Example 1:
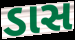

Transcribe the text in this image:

ડાસ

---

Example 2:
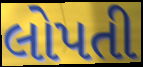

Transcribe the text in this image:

લોપતી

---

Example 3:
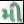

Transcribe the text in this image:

મી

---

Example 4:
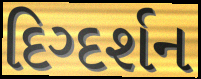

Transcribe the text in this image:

દિગ્દર્શન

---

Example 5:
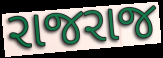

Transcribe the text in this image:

રાજરાજ